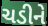
ચડીને